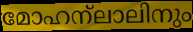
മോഹന്ലാലിനും